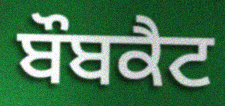
ਬੌਬਕੈਟ